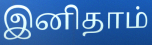
இனிதாம்